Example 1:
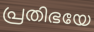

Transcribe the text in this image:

പ്രതിഭയേ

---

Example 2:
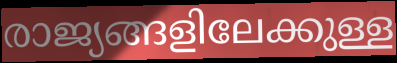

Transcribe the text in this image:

രാജ്യങ്ങളിലേക്കുള്ള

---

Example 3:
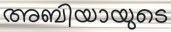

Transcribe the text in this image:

അബിയായുടെ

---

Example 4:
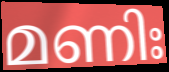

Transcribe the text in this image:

മണിഃ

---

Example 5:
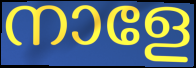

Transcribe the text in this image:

നാളേ